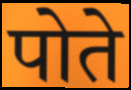
पोते